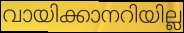
വായിക്കാനറിയില്ല